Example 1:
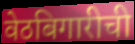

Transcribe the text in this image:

वेठबिगारीची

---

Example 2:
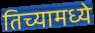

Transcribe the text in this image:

तिच्यामध्ये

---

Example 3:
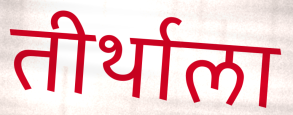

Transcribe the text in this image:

तीर्थाला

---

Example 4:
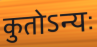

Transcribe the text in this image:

कुतोऽन्यः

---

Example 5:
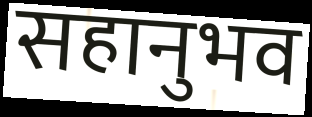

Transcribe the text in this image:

सहानुभव